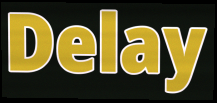
Delay